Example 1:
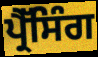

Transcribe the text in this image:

ਪ੍ਰੈੱਸਿੰਗ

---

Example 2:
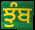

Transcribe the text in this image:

ਝੁੰਬ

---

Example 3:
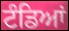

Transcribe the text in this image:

ਟੰਡਿਆਂ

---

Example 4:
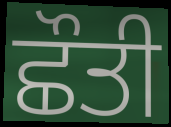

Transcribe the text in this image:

ਛੌਤੀ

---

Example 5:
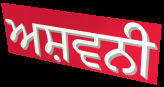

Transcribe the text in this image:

ਅਸ਼ਵਨੀ